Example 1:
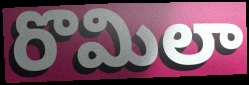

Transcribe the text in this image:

రొమిలా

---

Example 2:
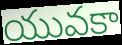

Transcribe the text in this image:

యువకా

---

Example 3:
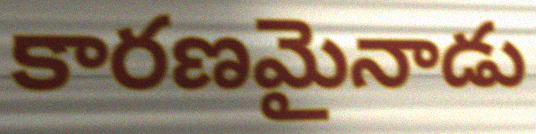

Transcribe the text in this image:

కారణమైనాడు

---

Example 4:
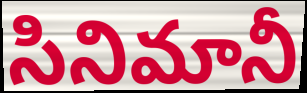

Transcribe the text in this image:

సినిమానీ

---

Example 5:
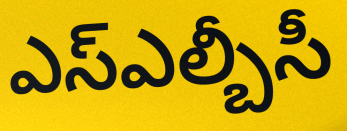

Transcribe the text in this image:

ఎస్ఎల్బీసీ